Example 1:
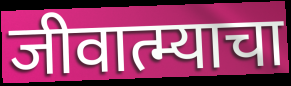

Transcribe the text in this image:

जीवात्म्याचा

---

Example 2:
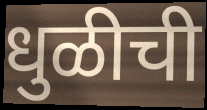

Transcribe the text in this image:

धुळीची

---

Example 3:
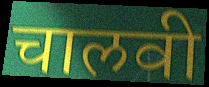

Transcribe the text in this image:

चालवी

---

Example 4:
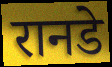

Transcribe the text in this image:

रानडे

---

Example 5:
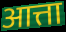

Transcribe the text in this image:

आत्ता